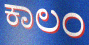
ಕಾಲಂ